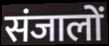
संजालों